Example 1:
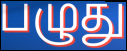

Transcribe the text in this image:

பழுது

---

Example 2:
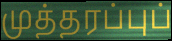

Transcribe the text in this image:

முத்தரப்புப்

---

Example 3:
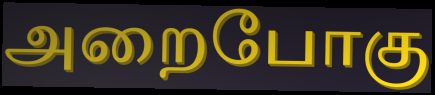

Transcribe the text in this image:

அறைபோகு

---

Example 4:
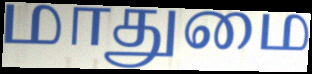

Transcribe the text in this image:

மாதுமை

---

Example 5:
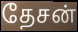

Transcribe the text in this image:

தேசன்